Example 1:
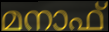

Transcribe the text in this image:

മനാഫ്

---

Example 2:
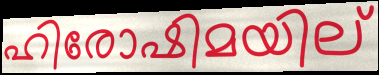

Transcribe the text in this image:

ഹിരോഷിമയില്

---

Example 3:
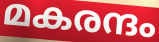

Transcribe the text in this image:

മകരന്ദം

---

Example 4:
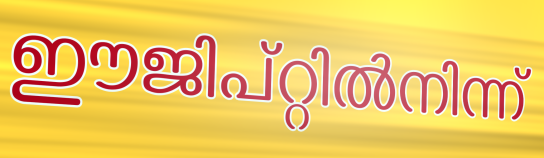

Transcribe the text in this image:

ഈജിപ്റ്റിൽനിന്ന്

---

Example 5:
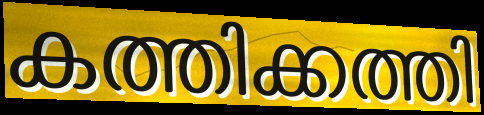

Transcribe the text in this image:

കത്തിക്കത്തി